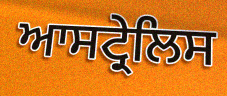
ਆਸਟ੍ਰੇਲਿਸ